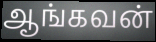
ஆங்கவன்